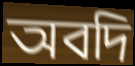
অবদি